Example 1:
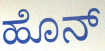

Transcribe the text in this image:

ಹೊನ್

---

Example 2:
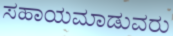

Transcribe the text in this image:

ಸಹಾಯಮಾಡುವರು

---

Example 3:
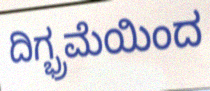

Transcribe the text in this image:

ದಿಗ್ಭ್ರಮೆಯಿಂದ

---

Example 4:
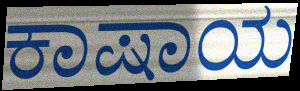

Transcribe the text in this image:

ಕಾಷಾಯ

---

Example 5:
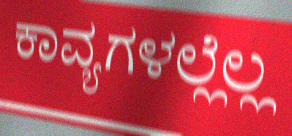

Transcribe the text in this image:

ಕಾವ್ಯಗಳಲ್ಲೆಲ್ಲ